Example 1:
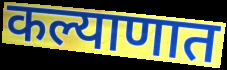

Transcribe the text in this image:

कल्याणात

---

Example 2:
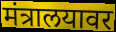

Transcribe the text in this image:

मंत्रालयावर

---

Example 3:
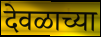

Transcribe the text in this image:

देवळाच्या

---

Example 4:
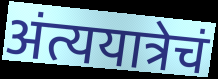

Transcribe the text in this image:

अंत्ययात्रेचं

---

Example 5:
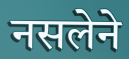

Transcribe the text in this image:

नसलेने